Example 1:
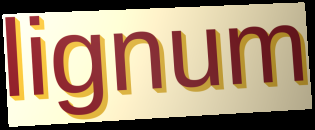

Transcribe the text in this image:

lignum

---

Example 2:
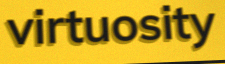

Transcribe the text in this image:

virtuosity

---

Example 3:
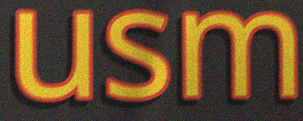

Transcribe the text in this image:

usm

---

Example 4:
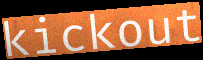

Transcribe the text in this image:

kickout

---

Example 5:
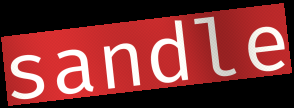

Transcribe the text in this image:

sandle